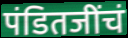
पंडितजींचं